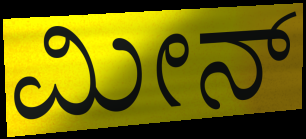
ಮೀನ್